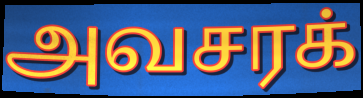
அவசரக்